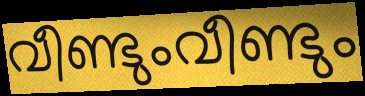
വീണ്ടുംവീണ്ടും